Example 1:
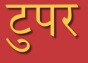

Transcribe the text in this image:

टुपर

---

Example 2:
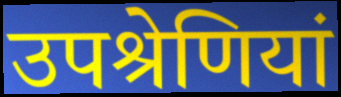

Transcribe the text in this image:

उपश्रेणियां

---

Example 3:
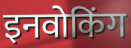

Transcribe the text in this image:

इनवोकिंग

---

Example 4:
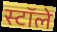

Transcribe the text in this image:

स्टॉले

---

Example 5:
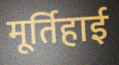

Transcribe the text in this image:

मूर्तिहाई